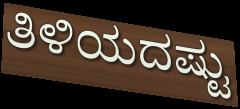
ತಿಳಿಯದಷ್ಟು